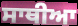
ਸਾਥੀਆ